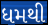
ધમથી